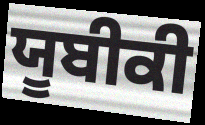
ਯੂਬੀਕੀ